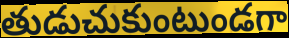
తుడుచుకుంటుండగా